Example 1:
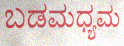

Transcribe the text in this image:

ಬಡಮಧ್ಯಮ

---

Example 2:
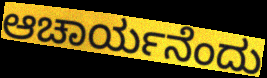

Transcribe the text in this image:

ಆಚಾರ್ಯನೆಂದು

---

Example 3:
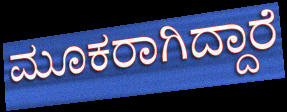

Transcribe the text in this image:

ಮೂಕರಾಗಿದ್ದಾರೆ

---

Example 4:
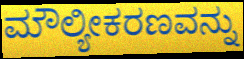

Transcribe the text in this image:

ಮೌಲ್ಯೀಕರಣವನ್ನು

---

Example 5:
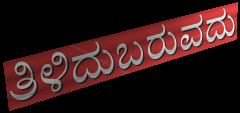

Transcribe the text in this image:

ತಿಳಿದುಬರುವದು